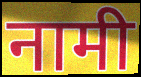
नामी